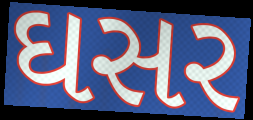
ઘસર